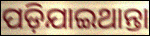
ପଡ଼ିଯାଇଥାନ୍ତା